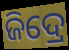
ଜିଦ୍ରେ